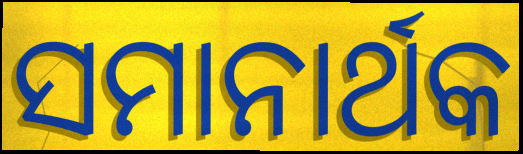
ସମାନାର୍ଥକ